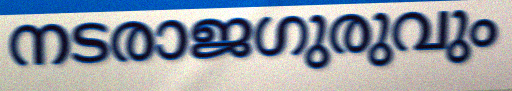
നടരാജഗുരുവും